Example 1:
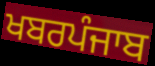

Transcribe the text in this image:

ਖਬਰਪੰਜਾਬ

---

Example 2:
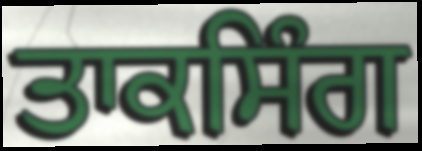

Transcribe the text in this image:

ਤਾਕਸਿੰਗ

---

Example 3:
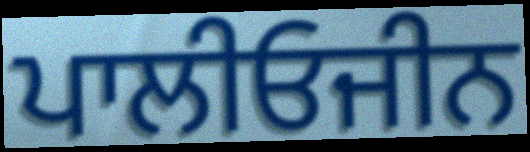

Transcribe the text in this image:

ਪਾਲੀਓਜੀਨ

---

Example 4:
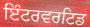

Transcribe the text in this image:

ਇੰਟਰਵਰਟਿਡ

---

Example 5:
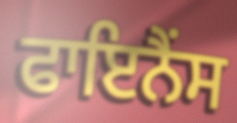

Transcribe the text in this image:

ਫਾਇਨੈਂਸ